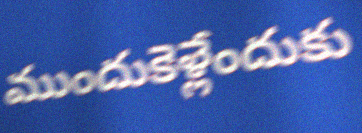
ముందుకెళ్లేందుకు